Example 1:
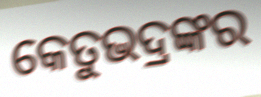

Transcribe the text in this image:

କେତୁଭଦ୍ରଙ୍କର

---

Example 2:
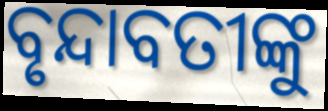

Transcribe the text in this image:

ବୃନ୍ଦାବତୀଙ୍କୁ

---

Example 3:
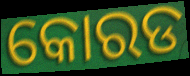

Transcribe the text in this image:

କୋରଡ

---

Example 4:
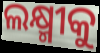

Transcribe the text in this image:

ଲକ୍ଷ୍ମୀକୁ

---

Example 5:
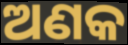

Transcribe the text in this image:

ଅଣକ